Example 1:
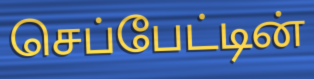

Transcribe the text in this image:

செப்பேட்டின்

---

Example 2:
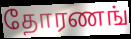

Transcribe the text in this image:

தோரணங்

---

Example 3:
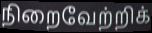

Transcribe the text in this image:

நிறைவேற்றிக்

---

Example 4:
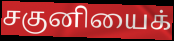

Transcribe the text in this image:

சகுனியைக்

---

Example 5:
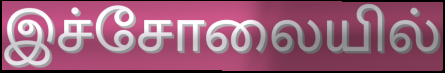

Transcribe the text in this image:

இச்சோலையில்